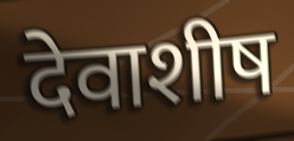
देवाशीष